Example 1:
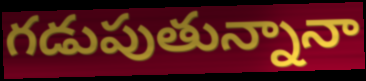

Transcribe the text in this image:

గడుపుతున్నానా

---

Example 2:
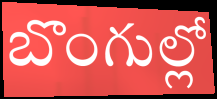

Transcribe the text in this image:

బొంగుల్లో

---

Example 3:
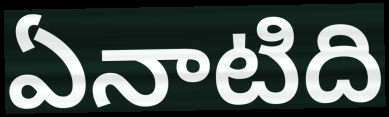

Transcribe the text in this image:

ఏనాటిది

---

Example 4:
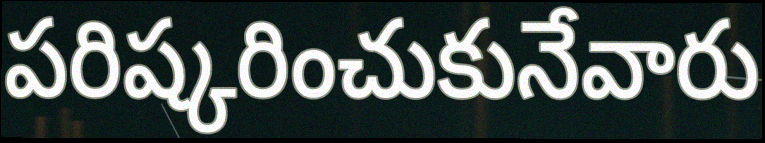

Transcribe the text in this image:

పరిష్కరించుకునేవారు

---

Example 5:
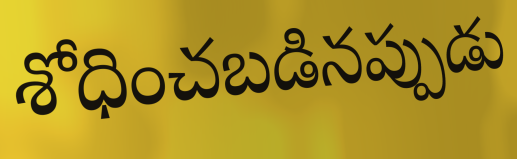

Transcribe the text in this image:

శోధించబడినప్పుడు